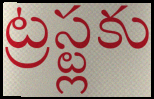
ట్రస్ట్లకు